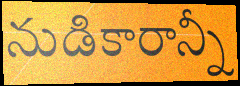
నుడికారాన్నీ